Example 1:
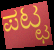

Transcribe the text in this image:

ಪಟ್ಟ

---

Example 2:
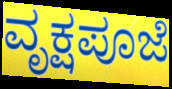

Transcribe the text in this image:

ವೃಕ್ಷಪೂಜೆ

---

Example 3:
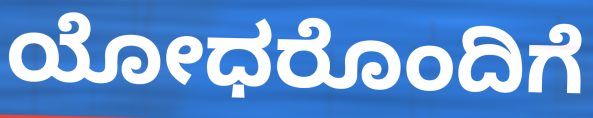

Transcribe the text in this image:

ಯೋಧರೊಂದಿಗೆ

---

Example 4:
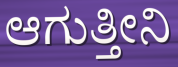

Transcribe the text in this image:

ಆಗುತ್ತೀನಿ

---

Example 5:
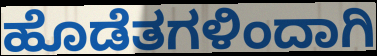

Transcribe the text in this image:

ಹೊಡೆತಗಳಿಂದಾಗಿ